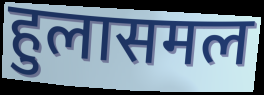
हुलासमल